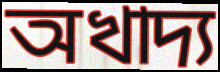
অখাদ্য